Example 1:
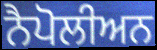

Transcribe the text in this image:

ਨੈਪੋਲੀਅਨ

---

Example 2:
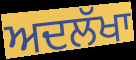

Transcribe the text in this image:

ਅਦਲੱਖਾ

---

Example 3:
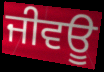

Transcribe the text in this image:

ਜੀਵਊ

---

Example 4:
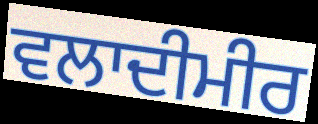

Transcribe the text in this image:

ਵਲਾਦੀਮੀਰ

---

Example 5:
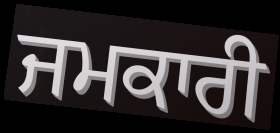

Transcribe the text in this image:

ਜਮਕਾਰੀ